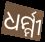
ଧର୍ମ୍ମୀ